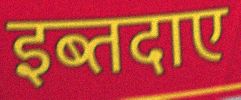
इब्तदाए